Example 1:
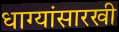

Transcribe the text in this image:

धाग्यांसारखी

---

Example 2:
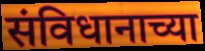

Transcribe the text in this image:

संविधानाच्या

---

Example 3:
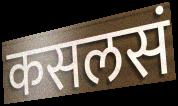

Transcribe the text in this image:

कसलसं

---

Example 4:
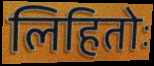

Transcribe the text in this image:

लिहितोः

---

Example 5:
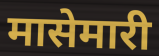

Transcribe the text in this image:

मासेमारी